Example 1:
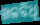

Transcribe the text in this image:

ଖଳବିଧି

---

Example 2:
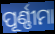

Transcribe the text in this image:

ପୂର୍ଣ୍ଣୀମା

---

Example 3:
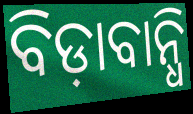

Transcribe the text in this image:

ବିଡ଼ାବାନ୍ଧି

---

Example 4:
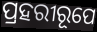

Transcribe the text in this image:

ପ୍ରହରୀରୂପେ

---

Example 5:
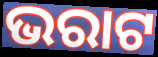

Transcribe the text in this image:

ଭରାଟ